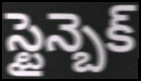
స్టైన్బెక్